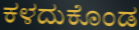
ಕಳದುಕೊಂಡ